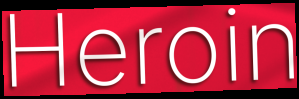
Heroin